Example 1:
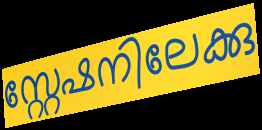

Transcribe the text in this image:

സ്റ്റേഷനിലേക്കു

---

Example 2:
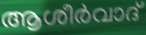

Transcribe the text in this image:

ആശീർവാദ്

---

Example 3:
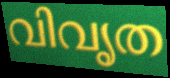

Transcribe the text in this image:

വിവൃത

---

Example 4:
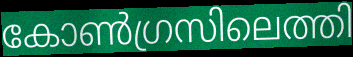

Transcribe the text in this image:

കോൺഗ്രസിലെത്തി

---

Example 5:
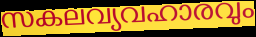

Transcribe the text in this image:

സകലവ്യവഹാരവും